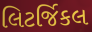
લિટર્જિકલ